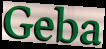
Geba